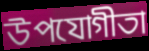
উপযোগীতা